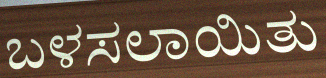
ಬಳಸಲಾಯಿತು